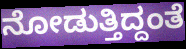
ನೋಡುತ್ತಿದ್ದಂತೆ